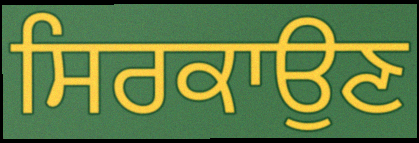
ਸਿਰਕਾਉਣ